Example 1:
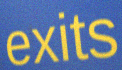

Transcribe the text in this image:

exits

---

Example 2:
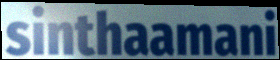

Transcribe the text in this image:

sinthaamani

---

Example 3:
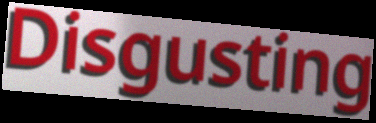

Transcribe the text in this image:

Disgusting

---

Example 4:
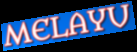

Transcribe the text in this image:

MELAYU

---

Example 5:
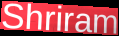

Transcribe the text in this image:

Shriram